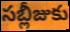
సబ్లీజుకు